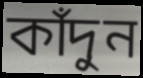
কাঁদুন